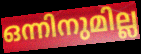
ഒന്നിനുമില്ല